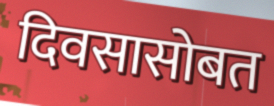
दिवसासोबत